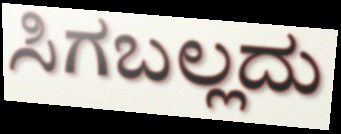
ಸಿಗಬಲ್ಲದು